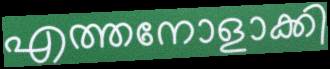
എത്തനോളാക്കി